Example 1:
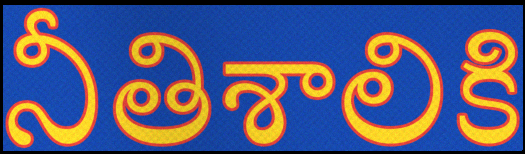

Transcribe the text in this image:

నీతిశాలికి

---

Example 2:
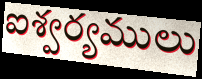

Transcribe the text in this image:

ఐశ్వర్యములు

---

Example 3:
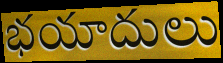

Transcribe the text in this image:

భయాదులు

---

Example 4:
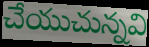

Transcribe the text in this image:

చేయుచున్నవి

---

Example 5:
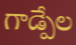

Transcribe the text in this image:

గాడ్పేల